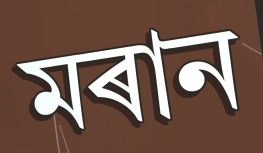
মৰান